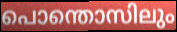
പൊന്തൊസിലും